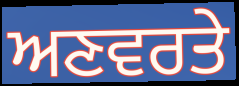
ਅਣਵਰਤੇ